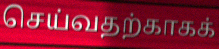
செய்வதற்காகக்